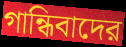
গান্ধিবাদের